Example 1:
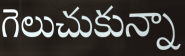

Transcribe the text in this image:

గెలుచుకున్నా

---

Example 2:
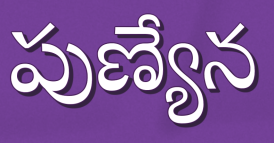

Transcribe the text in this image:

పుణ్యేన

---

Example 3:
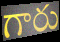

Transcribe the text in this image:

గారు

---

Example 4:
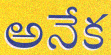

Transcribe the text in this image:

అనేక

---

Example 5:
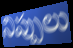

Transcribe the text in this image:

నిప్పులు